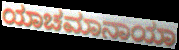
ಯಾಚಮಾನಾಯಾ